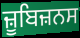
ਜ਼ੂਬਿਜ਼ਨਸ